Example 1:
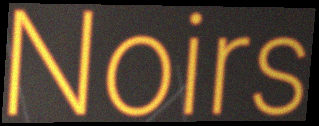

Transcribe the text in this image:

Noirs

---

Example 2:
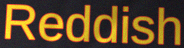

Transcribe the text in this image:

Reddish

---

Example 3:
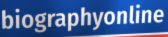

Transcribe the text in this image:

biographyonline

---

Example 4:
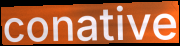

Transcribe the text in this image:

conative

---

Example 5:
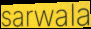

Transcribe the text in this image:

sarwala